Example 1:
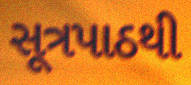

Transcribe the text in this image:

સૂત્રપાઠથી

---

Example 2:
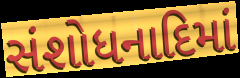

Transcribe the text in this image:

સંશોધનાદિમાં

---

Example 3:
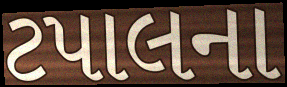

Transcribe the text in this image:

ટપાલના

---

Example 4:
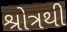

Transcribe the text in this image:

શ્રોત્રથી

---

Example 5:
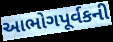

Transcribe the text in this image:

આભોગપૂર્વકની